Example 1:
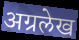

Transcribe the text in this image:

अग्रलेख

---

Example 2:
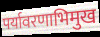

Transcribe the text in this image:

पर्यावरणाभिमुख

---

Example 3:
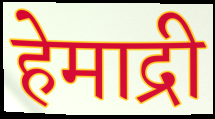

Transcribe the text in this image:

हेमाद्री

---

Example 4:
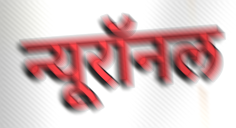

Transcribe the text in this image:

न्यूरॉनल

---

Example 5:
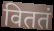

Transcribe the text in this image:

विततं